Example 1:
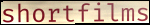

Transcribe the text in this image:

shortfilms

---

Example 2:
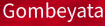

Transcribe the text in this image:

Gombeyata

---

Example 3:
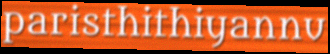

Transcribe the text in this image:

paristhithiyannu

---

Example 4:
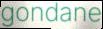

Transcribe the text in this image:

gondane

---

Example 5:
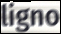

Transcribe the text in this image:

ligno